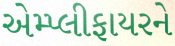
એમ્પ્લીફાયરને